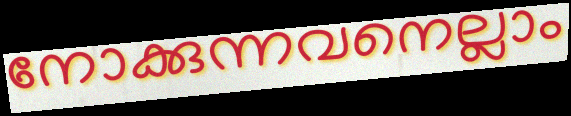
നോക്കുന്നവനെല്ലാം